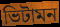
ভিটামন